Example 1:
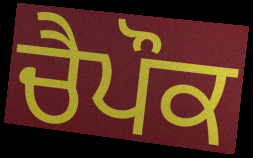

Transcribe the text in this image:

ਚੈਪੌਕ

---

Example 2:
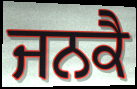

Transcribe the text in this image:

ਜਨਕੈ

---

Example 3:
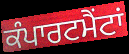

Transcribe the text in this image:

ਕੰਪਾਰਟਮੈਂਟਾਂ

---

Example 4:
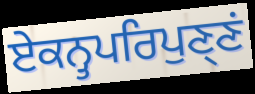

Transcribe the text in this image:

ਏਕਨ੍ਤਪਰਿਪੁਣ੍ਣਂ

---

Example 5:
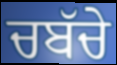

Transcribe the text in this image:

ਚਬੱਚੇ